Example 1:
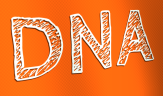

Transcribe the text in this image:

DNA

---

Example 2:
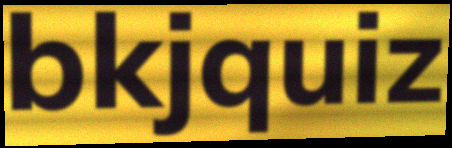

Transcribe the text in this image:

bkjquiz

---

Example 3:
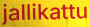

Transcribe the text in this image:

jallikattu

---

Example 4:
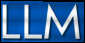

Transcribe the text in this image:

LLM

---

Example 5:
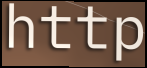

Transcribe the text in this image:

http